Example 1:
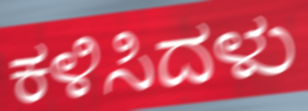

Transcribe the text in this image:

ಕಳಿಸಿದಳು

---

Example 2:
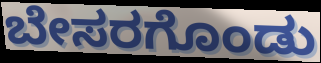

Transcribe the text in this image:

ಬೇಸರಗೊಂಡು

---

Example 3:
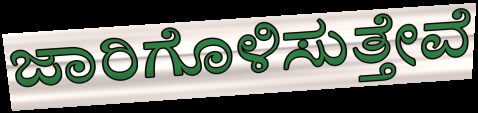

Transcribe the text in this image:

ಜಾರಿಗೊಳಿಸುತ್ತೇವೆ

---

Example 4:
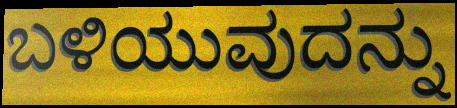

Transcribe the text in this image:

ಬಳಿಯುವುದನ್ನು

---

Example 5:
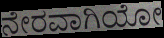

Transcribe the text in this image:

ನೇರವಾಗಿಯೋ